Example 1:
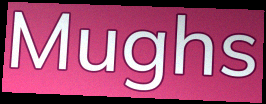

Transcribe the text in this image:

Mughs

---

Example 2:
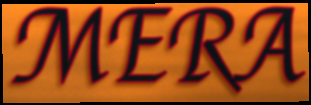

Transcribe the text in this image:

MERA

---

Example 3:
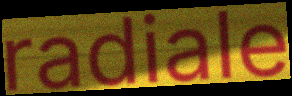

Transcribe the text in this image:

radiale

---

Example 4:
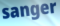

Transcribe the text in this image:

sanger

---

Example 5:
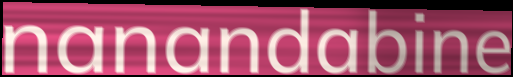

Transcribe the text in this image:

nanandabine